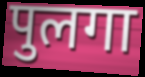
पुलगा